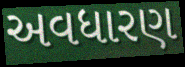
અવધારણ